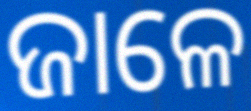
ଜାଳେ